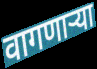
वागणाऱ्या